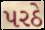
પરઠે